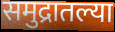
समुद्रातल्या